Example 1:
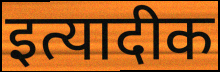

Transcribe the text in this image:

इत्यादीक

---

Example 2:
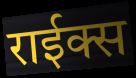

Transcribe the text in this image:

राईक्स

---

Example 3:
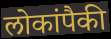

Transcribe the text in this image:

लोकांपैकी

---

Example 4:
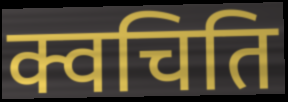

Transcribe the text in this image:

क्वचिति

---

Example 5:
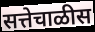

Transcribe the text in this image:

सत्तेचाळीस